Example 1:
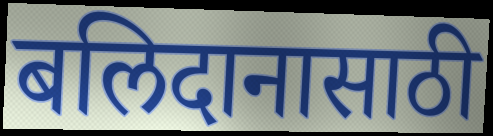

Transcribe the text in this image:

बलिदानासाठी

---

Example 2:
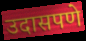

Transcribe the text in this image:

उदासपणे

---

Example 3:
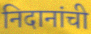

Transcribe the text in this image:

निदानांची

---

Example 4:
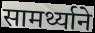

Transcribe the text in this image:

सामर्थ्याने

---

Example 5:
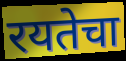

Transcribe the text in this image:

रयतेचा